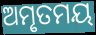
ଅମୃତମୟ